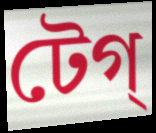
টেগ্